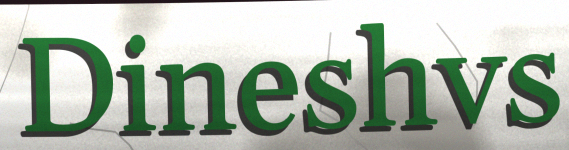
Dineshvs